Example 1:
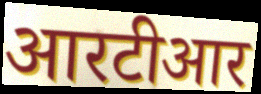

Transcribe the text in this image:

आरटीआर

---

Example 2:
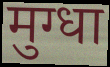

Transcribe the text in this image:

मुग्धा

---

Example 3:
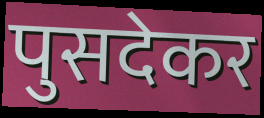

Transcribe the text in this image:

पुसदेकर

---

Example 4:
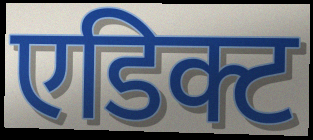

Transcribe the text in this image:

एडिक्ट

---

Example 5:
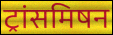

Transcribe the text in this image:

ट्रांसमिषन